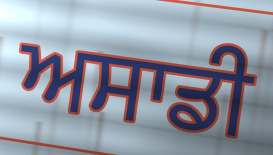
ਅਸਾਡੀ